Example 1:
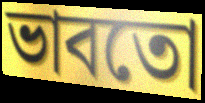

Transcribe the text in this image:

ভাবতো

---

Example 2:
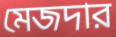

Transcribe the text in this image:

মেজদার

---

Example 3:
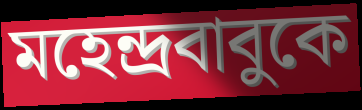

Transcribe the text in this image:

মহেন্দ্রবাবুকে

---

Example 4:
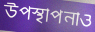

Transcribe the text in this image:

উপস্থাপনাও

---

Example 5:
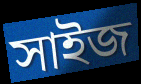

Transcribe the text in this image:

সাইজ